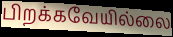
பிறக்கவேயில்லை